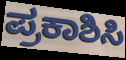
ಪ್ರಕಾಶಿಸಿ